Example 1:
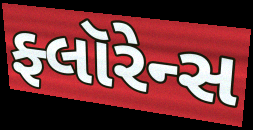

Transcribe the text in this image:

ફ્લૉરેન્સ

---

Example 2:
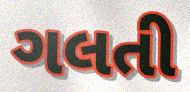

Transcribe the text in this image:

ગલતી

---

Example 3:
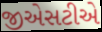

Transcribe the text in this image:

જીએસટીએ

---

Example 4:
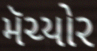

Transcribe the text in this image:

મૅચ્યોર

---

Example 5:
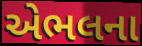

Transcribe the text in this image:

એભલના